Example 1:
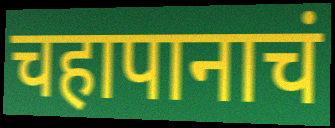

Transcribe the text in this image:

चहापानाचं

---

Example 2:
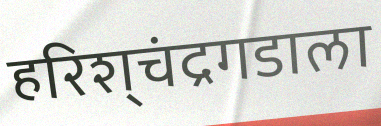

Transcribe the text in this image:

हरिश्चंद्रगडाला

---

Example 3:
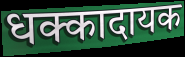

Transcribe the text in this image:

धक्‍कादायक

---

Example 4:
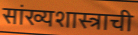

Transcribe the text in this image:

सांख्यशास्त्राची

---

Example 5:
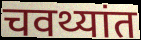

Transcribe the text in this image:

चवथ्यांत